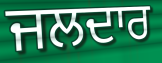
ਜਲਦਾਰ